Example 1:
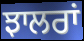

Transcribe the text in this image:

ਝਾਲਰਾਂ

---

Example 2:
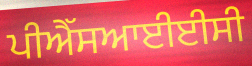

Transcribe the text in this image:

ਪੀਐੱਸਆਈਈਸੀ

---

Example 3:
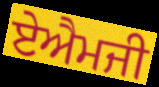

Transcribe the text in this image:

ਏਐਮਜੀ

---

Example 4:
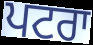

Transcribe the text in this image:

ਪਟਰਾ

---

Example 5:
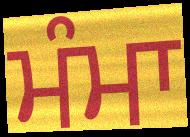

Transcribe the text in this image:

ਮੰਮਾ